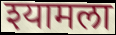
श्यामला